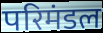
परिमंडल